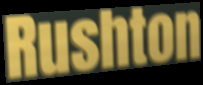
Rushton